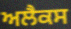
ਅਲੈਕਸ